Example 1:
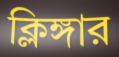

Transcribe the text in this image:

ক্লিঙ্গার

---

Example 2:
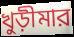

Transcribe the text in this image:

খুড়ীমার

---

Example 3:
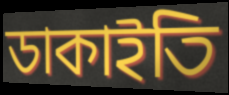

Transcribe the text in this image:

ডাকাইতি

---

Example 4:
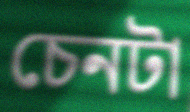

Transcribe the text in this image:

চেনটা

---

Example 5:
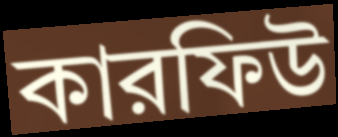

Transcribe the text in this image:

কারফিউ